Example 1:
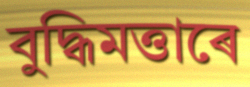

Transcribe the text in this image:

বুদ্ধিমত্তাৰে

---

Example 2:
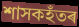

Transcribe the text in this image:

শাসকহঁতৰ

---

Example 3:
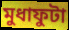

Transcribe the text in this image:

মুধাফুটা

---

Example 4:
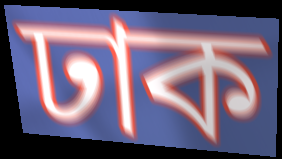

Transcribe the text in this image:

ঢাক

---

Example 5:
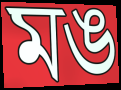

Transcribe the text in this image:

মঙ